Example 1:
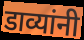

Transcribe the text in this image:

डाव्यांनी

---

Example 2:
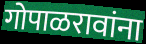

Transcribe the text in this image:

गोपाळरावांना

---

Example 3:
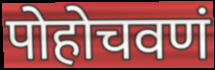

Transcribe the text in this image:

पोहोचवणं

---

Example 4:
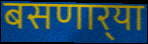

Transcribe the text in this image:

बसणार्‍या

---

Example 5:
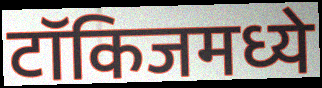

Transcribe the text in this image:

टॉकिजमध्ये